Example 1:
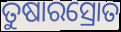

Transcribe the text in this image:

ତୁଷାରସ୍ରୋତ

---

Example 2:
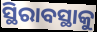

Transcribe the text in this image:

ସ୍ଥିରାବସ୍ଥାକୁ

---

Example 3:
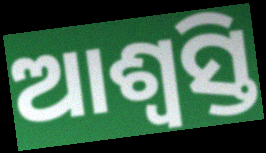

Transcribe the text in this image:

ଆଶ୍ଵସ୍ତି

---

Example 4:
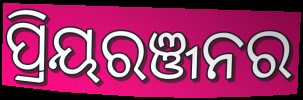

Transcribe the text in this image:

ପ୍ରିୟରଞ୍ଜନର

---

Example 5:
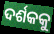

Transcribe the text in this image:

ଦର୍ଶକକୁ